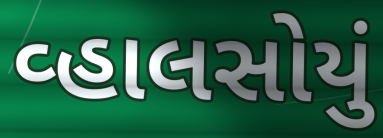
વ્હાલસોયું